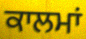
ਕਾਲਮਾਂ